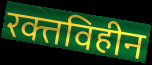
रक्तविहीन